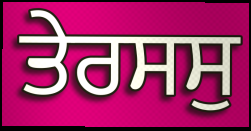
ਤੇਰਸਸੁ